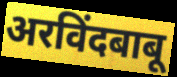
अरविंदबाबू